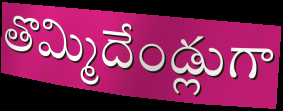
తొమ్మిదేండ్లుగా